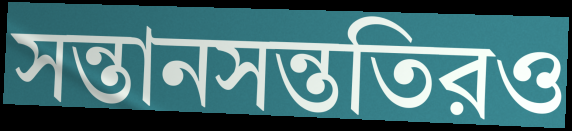
সন্তানসন্ততিরও